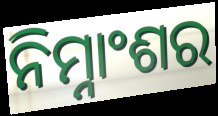
ନିମ୍ନାଂଶର